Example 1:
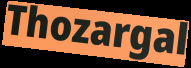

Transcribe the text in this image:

Thozargal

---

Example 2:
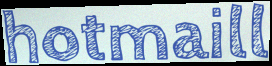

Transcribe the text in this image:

hotmaill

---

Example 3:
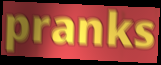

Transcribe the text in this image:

pranks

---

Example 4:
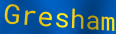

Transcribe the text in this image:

Gresham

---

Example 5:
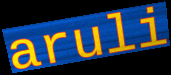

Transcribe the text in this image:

aruli